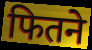
फितने